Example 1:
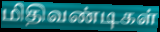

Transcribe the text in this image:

மிதிவண்டிகள்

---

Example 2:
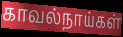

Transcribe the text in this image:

காவல்நாய்கள்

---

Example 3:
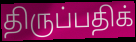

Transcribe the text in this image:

திருப்பதிக்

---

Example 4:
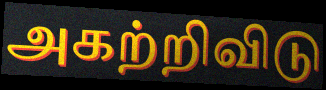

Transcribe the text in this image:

அகற்றிவிடு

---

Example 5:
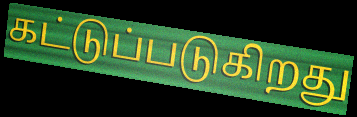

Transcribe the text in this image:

கட்டுப்படுகிறது